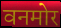
वनमोर